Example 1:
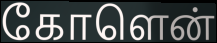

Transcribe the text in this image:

கோளென்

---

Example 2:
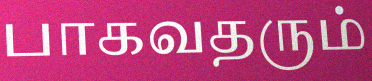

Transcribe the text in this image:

பாகவதரும்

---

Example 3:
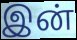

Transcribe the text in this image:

இன்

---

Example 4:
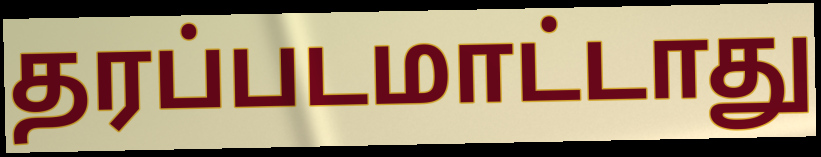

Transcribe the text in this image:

தரப்படமாட்டாது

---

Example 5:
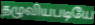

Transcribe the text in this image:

தழுவியபடியே